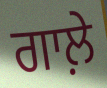
ਗਾਲ਼ੇ